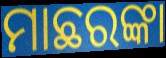
ମାଛରଙ୍କା